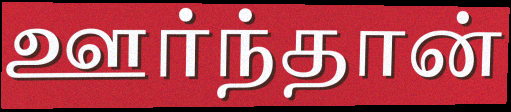
ஊர்ந்தான்